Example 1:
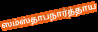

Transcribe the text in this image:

ஸம்ஸ்தாபநார்த்தாய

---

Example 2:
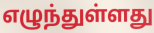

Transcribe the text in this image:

எழுந்துள்ளது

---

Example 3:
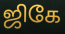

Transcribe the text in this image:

ஜிகே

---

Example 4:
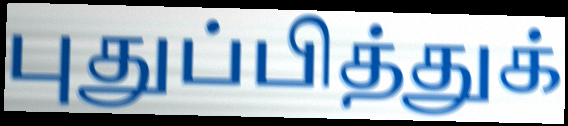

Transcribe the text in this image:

புதுப்பித்துக்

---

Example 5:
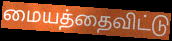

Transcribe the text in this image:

மையத்தைவிட்டு